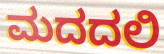
ಮದದಲಿ